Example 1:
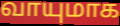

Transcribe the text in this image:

வாயுமாக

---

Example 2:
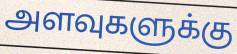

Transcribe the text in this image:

அளவுகளுக்கு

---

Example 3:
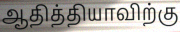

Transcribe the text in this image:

ஆதித்தியாவிற்கு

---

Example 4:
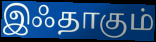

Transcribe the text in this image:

இஃதாகும்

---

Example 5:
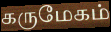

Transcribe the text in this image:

கருமேகம்